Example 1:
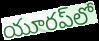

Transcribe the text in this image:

యూరప్‌లో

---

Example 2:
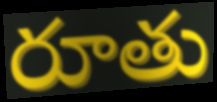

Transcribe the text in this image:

రూతు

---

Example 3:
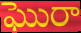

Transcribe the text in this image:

ఘొరా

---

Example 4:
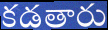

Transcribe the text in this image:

కడతారు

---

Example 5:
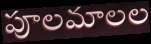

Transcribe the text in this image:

పూలమాలల